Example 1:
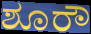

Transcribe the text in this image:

ಶೂರೌ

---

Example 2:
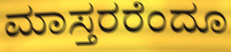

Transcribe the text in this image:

ಮಾಸ್ತರರೆಂದೂ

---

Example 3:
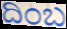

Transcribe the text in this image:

ದಿಂಬ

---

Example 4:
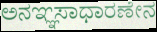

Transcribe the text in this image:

ಅನಞ್ಞಸಾಧಾರಣೇನ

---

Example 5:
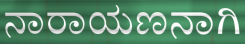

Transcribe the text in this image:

ನಾರಾಯಣನಾಗಿ